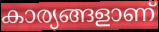
കാര്യങ്ങളാണ്